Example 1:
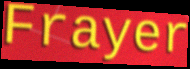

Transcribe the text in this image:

Frayer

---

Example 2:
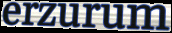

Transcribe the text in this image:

erzurum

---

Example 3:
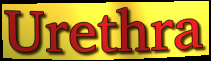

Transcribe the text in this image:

Urethra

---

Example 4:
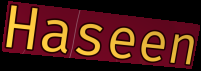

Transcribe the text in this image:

Haseen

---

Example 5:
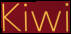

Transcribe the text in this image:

Kiwi